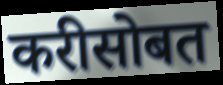
करीसोबत